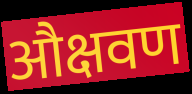
औक्षवण